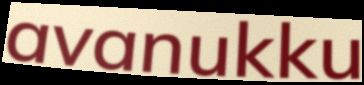
avanukku